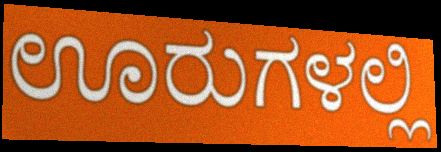
ಊರುಗಳಲ್ಲಿ